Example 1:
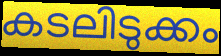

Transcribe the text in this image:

കടലിടുക്കം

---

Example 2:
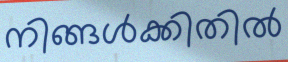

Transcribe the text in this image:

നിങ്ങൾക്കിതിൽ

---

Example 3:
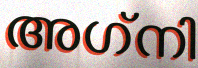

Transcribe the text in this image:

അഗ്‌നി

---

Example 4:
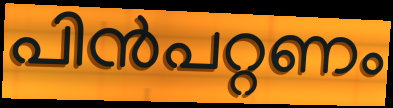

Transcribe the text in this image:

പിൻപറ്റണം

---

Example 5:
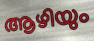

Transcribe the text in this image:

ആഴിയും